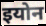
इयोन